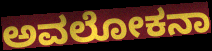
ಅವಲೋಕನಾ